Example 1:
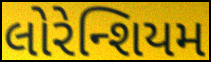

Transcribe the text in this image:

લોરેન્શિયમ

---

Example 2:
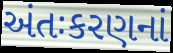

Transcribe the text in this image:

અંતઃકરણનાં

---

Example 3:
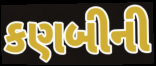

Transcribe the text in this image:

કણબીની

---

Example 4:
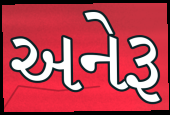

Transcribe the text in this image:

અનેરૂ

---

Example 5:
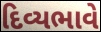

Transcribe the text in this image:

દિવ્યભાવે